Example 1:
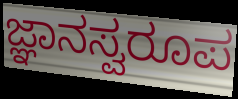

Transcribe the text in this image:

ಜ್ಞಾನಸ್ವರೂಪ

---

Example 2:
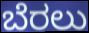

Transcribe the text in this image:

ಬೆರಲು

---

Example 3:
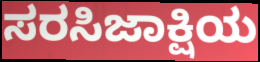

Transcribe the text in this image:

ಸರಸಿಜಾಕ್ಷಿಯ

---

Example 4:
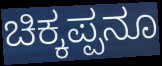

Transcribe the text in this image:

ಚಿಕ್ಕಪ್ಪನೂ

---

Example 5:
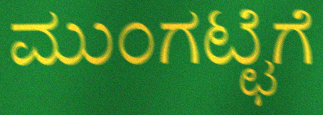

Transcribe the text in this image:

ಮುಂಗಟ್ಟೆಗೆ